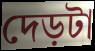
দেড়টা